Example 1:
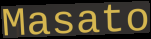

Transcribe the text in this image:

Masato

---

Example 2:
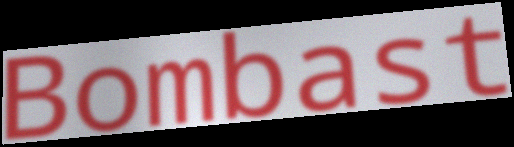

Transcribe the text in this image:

Bombast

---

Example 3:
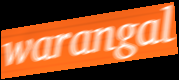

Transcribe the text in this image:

warangal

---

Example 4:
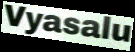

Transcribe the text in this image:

Vyasalu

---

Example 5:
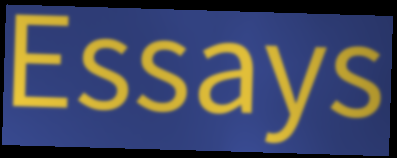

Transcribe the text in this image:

Essays